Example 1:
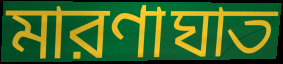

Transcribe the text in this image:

মারণাঘাত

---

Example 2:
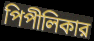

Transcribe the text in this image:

পিপীলিকার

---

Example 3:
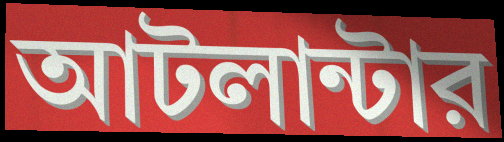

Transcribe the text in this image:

আটলান্টার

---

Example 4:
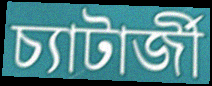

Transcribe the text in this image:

চ্যাটার্জী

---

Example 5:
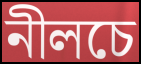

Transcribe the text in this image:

নীলচে